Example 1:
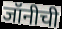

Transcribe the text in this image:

जॉनीची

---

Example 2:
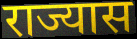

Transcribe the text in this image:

राज्यास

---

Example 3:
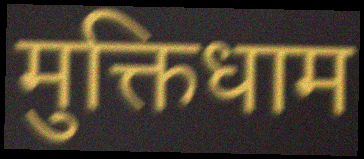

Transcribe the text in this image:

मुक्तिधाम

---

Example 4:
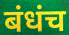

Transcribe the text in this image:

बंधंच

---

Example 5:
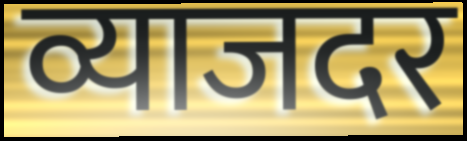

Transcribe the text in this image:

व्याजदर